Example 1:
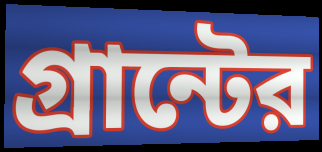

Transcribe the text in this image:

গ্রান্টের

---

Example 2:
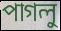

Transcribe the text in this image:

পাগলু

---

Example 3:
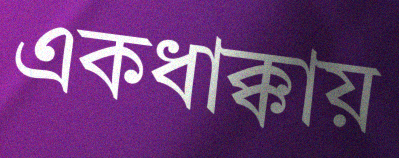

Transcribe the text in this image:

একধাক্কায়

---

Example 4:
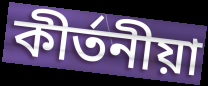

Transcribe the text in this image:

কীর্তনীয়া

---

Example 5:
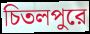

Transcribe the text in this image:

চিতলপুরে